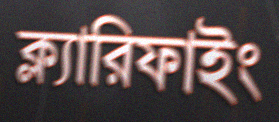
ক্ল্যারিফাইং